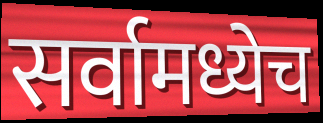
सर्वामध्येच